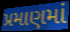
પ્રમાણમાં